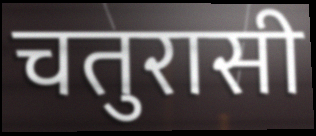
चतुरासी